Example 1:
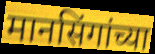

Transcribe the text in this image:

मानसिंगांच्या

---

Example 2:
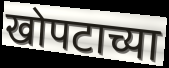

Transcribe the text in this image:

खोपटाच्या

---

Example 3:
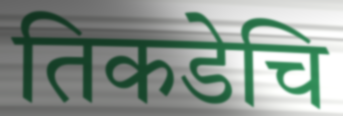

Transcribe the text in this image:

तिकडेचि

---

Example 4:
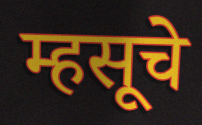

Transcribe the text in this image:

म्हसूचे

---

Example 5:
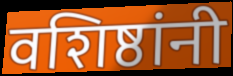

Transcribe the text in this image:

वशिष्ठांनी